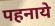
पहनाये